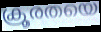
ക്രൂരതയെ